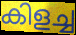
കിളച്ച